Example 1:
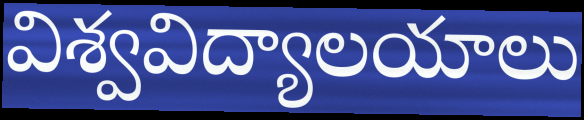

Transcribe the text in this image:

విశ్వవిద్యాలయాలు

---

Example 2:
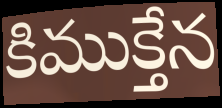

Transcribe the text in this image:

కిముక్తేన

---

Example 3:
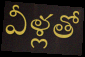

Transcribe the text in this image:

వీళ్లతో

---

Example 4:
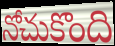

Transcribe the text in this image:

నోచుకొంది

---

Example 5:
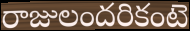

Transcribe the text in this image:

రాజులందరికంటె